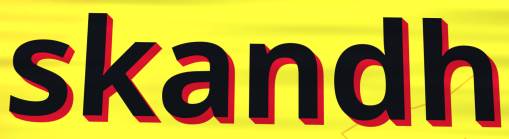
skandh